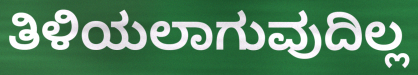
ತಿಳಿಯಲಾಗುವುದಿಲ್ಲ